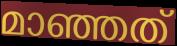
മാഞ്ഞത്